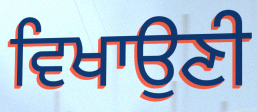
ਵਿਖਾਉਣੀ